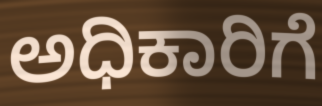
ಅಧಿಕಾರಿಗೆ